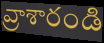
వ్రాశారండి